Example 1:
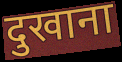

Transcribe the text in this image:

दुखाना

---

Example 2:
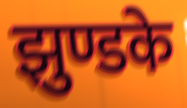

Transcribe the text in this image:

झुण्डके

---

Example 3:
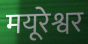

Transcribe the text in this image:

मयूरेश्वर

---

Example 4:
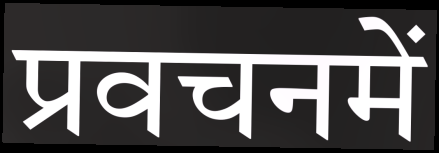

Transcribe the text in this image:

प्रवचनमें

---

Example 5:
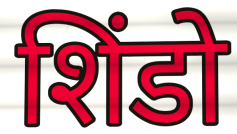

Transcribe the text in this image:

शिंडो